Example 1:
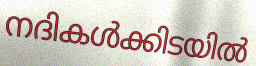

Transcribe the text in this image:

നദികൾക്കിടയിൽ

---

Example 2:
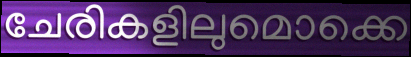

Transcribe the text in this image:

ചേരികളിലുമൊക്കെ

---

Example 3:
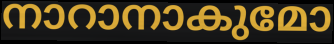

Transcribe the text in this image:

നാറാനാകുമോ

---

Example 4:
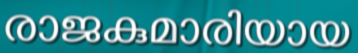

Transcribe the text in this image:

രാജകുമാരിയായ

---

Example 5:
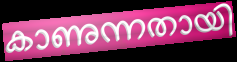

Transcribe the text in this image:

കാണുന്നതായി